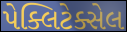
પેક્લિટેક્સેલ